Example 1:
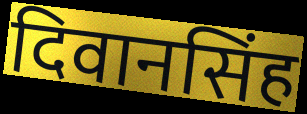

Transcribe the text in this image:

दिवानसिंह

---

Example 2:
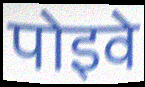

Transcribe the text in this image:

पोइवे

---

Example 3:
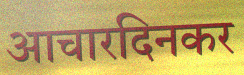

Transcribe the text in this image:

आचारदिनकर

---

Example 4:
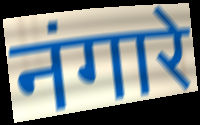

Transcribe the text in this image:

नंगारे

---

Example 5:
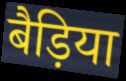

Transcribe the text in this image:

बैड़िया